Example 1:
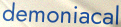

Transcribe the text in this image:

demoniacal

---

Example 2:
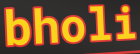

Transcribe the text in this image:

bholi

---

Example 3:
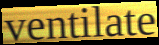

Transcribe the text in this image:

ventilate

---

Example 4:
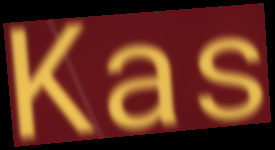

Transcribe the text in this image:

Kas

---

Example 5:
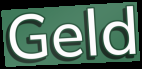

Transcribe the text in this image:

Geld